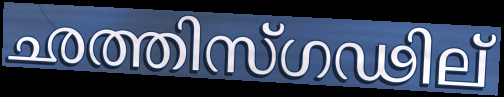
ഛത്തിസ്ഗഢില്